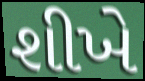
શીખે